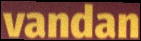
vandan